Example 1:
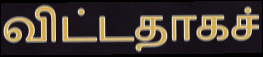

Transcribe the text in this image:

விட்டதாகச்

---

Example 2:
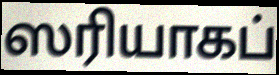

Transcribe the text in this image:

ஸரியாகப்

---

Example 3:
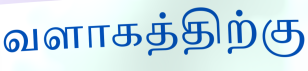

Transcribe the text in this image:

வளாகத்திற்கு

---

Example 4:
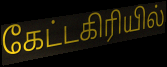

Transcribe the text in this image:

கேட்டகிரியில்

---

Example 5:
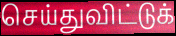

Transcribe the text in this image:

செய்துவிட்டுக்